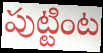
పుట్టింట